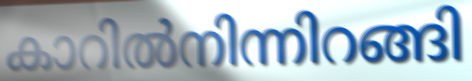
കാറിൽനിന്നിറങ്ങി